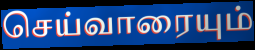
செய்வாரையும்